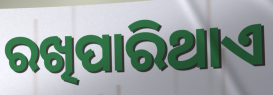
ରଖିପାରିଥାଏ